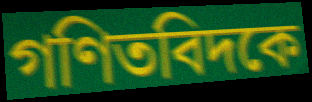
গণিতবিদকে